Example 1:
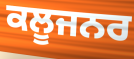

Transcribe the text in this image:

ਕਲੂਜਨਰ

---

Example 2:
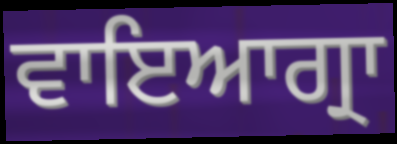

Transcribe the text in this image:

ਵਾਇਆਗ੍ਰਾ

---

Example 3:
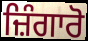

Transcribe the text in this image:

ਜ਼ਿੰਗਾਰੋ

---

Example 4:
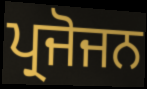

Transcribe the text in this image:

ਪ੍ਰਜੋਜਨ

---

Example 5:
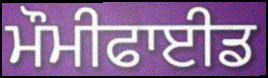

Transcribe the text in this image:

ਮੌਮੀਫਾਈਡ